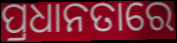
ପ୍ରଧାନତାରେ